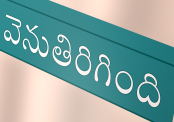
వెనుతిరిగింది